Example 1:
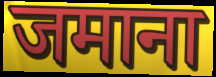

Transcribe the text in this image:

जमाना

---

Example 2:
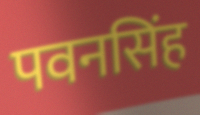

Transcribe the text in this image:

पवनसिंह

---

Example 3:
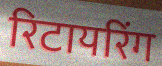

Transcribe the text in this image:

रिटायरिंग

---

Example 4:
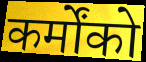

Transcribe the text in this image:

कर्मोंको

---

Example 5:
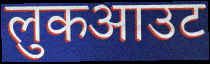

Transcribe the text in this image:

लुकआउट